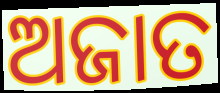
ଅଜାତ